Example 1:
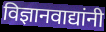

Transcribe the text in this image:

विज्ञानवाद्यांनी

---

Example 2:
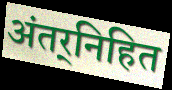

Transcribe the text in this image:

अंतर्निहित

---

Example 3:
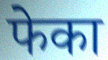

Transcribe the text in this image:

फेका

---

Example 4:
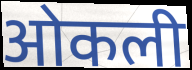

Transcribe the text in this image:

ओकली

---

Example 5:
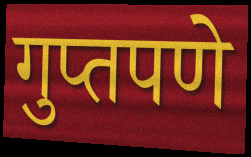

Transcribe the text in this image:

गुप्तपणे